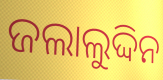
ଜଲାଲୁଦ୍ଦିନ